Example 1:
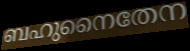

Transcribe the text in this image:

ബഹുനൈതേന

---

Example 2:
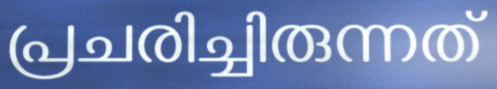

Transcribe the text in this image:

പ്രചരിച്ചിരുന്നത്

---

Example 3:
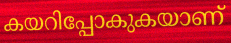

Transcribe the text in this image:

കയറിപ്പോകുകയാണ്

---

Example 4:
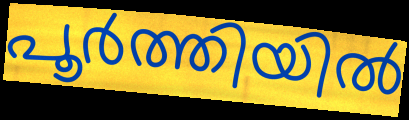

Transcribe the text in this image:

പൂർത്തിയിൽ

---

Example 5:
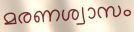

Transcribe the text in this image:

മരണശ്വാസം